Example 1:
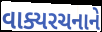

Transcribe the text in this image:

વાક્યરચનાને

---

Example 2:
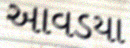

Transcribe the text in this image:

આવડયા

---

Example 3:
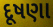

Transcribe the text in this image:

દૂષણા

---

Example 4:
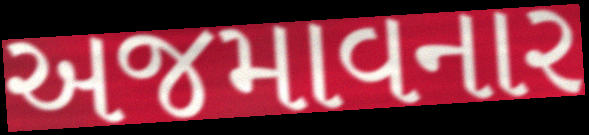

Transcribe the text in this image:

અજમાવનાર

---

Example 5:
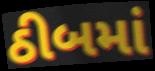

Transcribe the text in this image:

ઠીબમાં